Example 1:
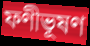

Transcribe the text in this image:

ফণীভূষণ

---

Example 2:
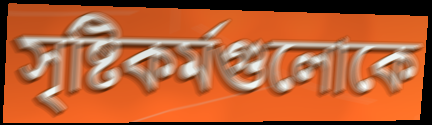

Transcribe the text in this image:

সৃষ্টিকর্মগুলোকে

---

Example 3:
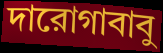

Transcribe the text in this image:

দারোগাবাবু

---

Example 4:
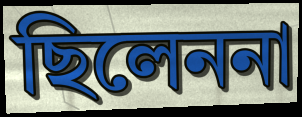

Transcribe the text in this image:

ছিলেননা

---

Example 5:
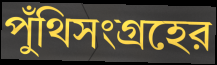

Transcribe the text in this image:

পুঁথিসংগ্রহের